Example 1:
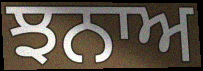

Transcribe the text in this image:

ਝਨਾਅ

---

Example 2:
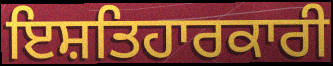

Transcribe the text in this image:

ਇਸ਼ਤਿਹਾਰਕਾਰੀ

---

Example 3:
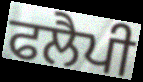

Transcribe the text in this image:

ਫਲੈਪੀ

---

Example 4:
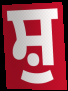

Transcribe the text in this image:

ਸ਼ੁ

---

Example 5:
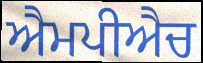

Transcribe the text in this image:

ਐਮਪੀਐਚ